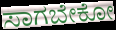
ಸಾಗಬೇಕೋ